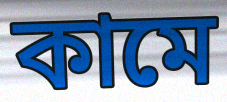
কামে